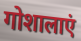
गोशालाएं